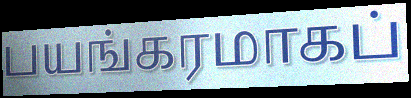
பயங்கரமாகப்